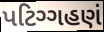
પટિગ્ગહણં